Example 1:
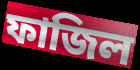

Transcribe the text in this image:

ফাজিল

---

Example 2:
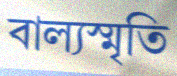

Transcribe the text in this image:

বাল্যস্মৃতি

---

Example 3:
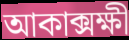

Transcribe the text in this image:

আকাক্সক্ষী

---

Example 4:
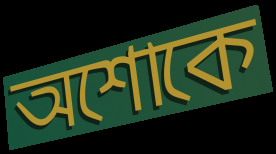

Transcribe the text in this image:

অশোকে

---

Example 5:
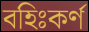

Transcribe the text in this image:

বহিঃকর্ণ